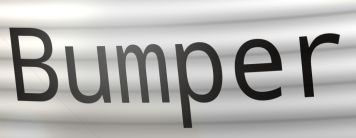
Bumper